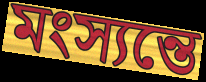
মংস্যন্তে